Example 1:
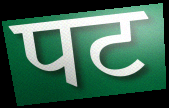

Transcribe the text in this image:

पट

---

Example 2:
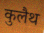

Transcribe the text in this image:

कुलैथ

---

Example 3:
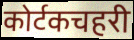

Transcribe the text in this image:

कोर्टकचहरी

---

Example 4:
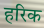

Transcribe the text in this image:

हरिक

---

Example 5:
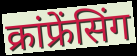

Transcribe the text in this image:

क्रांफ्रेंसिंग